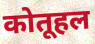
कोतूहल